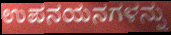
ಉಪನಯನಗಳನ್ನು